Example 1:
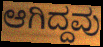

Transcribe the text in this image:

ಆಗಿದ್ದವು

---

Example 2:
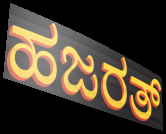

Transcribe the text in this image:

ಹಜರತ್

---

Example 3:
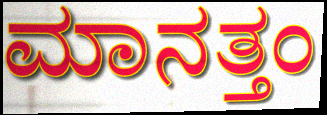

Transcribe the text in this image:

ಮಾನತ್ತಂ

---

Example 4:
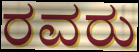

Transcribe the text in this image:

ರವರು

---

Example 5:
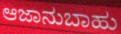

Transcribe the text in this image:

ಆಜಾನುಬಾಹು